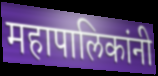
महापालिकांनी